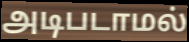
அடிபடாமல்